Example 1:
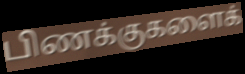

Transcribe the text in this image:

பிணக்குகளைக்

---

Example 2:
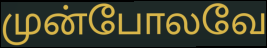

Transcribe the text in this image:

முன்போலவே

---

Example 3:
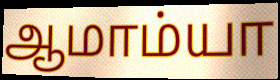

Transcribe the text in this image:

ஆமாம்யா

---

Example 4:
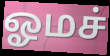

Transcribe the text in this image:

ஓமச்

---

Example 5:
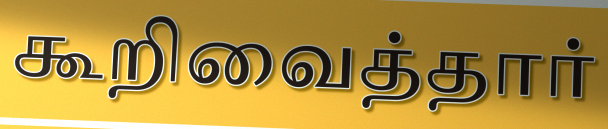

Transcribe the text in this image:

கூறிவைத்தார்